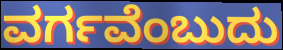
ವರ್ಗವೆಂಬುದು